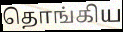
தொங்கிய